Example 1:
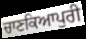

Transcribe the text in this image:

ਚਾਣਕਿਆਪੁਰੀ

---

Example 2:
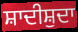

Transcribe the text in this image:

ਸ਼ਾਦੀਸ਼ੁਦਾ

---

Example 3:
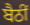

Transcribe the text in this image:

ਬੈਠੀਂ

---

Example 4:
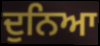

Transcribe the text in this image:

ਦੁਨਿਆ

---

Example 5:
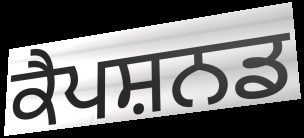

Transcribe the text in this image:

ਕੈਪਸ਼ਨਡ